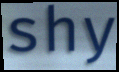
shy